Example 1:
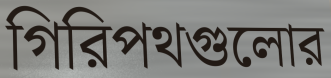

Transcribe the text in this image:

গিরিপথগুলোর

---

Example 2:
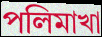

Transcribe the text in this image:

পলিমাখা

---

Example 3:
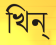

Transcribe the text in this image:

খিন্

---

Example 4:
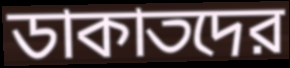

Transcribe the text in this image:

ডাকাতদের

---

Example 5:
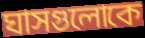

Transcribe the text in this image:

ঘাসগুলোকে